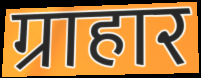
ग्राहार